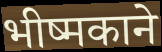
भीष्मकाने